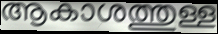
ആകാശത്തുള്ള